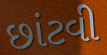
છાંટવી